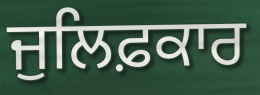
ਜੁਲਿਫ਼ਕਾਰ